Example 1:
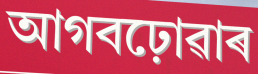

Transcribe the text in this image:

আগবঢ়োৱাৰ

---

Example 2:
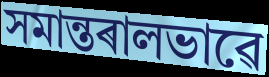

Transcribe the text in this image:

সমান্তৰালভাৱে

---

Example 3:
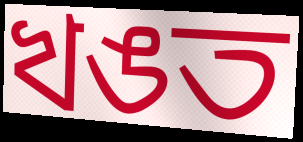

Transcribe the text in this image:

খঙত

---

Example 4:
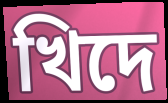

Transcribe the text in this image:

খিদে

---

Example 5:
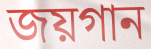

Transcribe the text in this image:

জয়গান